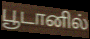
பூடானில்